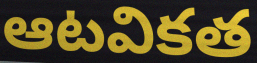
ఆటవికత